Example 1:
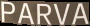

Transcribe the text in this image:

PARVA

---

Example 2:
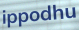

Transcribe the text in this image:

ippodhu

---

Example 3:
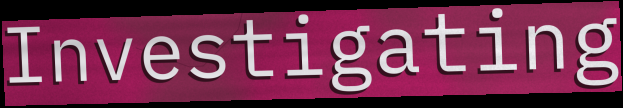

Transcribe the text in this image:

Investigating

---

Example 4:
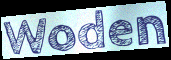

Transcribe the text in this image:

Woden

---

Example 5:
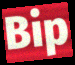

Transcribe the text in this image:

Bip